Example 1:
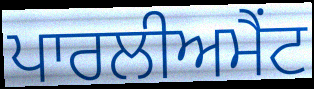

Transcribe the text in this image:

ਪਾਰਲੀਅਮੈਂਟ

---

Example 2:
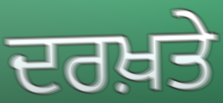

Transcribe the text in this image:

ਦਰਖ਼ਤੇ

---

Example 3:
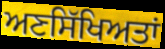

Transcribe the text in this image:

ਅਣਸਿੱਖਿਅਤਾਂ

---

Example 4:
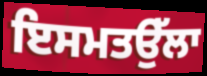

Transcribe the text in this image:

ਇਸਮਤਉੱਲਾ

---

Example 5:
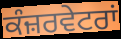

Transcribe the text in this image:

ਕੰਜ਼ਰਵੇਟਰਾਂ